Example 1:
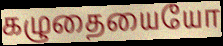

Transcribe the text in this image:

கழுதையையோ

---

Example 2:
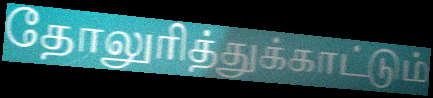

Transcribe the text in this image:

தோலுரித்துக்காட்டும்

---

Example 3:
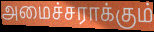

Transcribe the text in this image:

அமைச்சராக்கும்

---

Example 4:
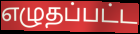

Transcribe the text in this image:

எழுதப்பட்ட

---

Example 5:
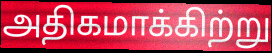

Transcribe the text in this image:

அதிகமாக்கிற்று